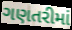
ગણતરીમાં